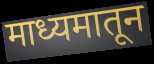
माध्यमातून